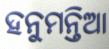
ହନୁମନ୍ତିଆ